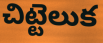
చిట్టెలుక